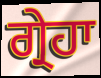
ਗ੍ਰੇਹਾ